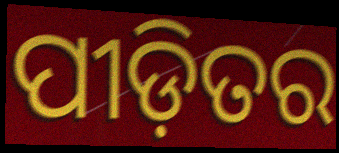
ପୀଡ଼ିତର